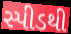
સ્પીડથી